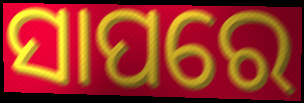
ସାପରେ